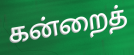
கன்றைத்